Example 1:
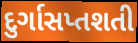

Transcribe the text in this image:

દુર્ગાસપ્તશતી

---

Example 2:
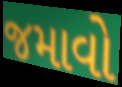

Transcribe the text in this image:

જમાવો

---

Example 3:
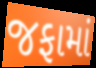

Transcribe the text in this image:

જફામાં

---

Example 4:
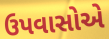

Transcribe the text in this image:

ઉપવાસોએ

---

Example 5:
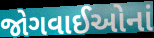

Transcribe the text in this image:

જોગવાઈઓનાં